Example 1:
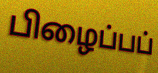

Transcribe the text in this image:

பிழைப்பப்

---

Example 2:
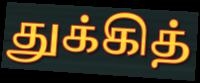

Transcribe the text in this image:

துக்கித்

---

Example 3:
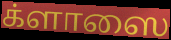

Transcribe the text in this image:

க்ளாஸை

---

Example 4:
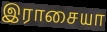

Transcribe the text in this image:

இராசையா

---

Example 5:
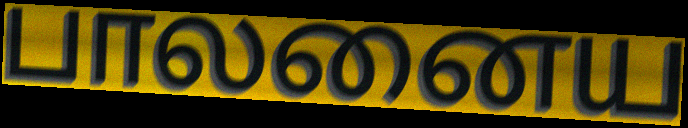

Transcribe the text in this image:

பாலனைய